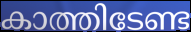
കാത്തിടേണ്ട